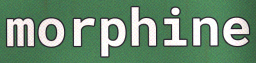
morphine